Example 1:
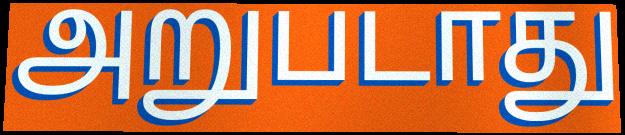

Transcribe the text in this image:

அறுபடாது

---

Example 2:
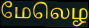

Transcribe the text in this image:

மேலெழ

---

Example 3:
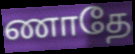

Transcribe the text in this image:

ணாதே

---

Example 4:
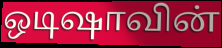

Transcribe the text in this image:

ஒடிஷாவின்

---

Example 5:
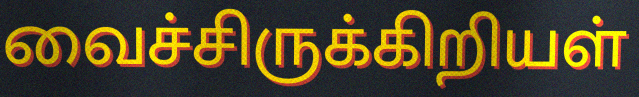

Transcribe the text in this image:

வைச்சிருக்கிறியள்